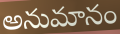
అనుమానం